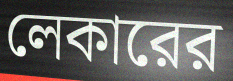
লেকারের